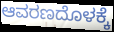
ಆವರಣದೊಳಕ್ಕೆ